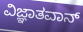
ವಿಜ್ಞಾತವಾನ್